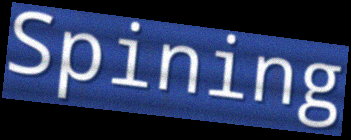
Spining